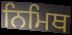
ਨਿਮਿਥ